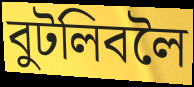
বুটলিবলৈ